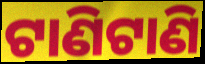
ଟାଣିଟାଣି